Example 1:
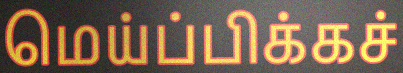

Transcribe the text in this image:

மெய்ப்பிக்கச்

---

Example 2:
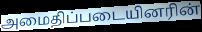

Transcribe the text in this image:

அமைதிப்படையினரின்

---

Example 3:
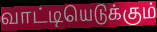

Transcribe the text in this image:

வாட்டியெடுக்கும்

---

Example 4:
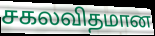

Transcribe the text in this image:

சகலவிதமான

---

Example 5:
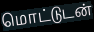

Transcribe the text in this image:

மொட்டுடன்